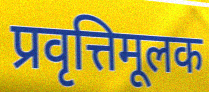
प्रवृत्तिमूलक